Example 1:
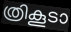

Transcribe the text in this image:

ത്രികൂടാ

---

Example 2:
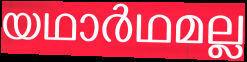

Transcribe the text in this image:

യഥാർഥമല്ല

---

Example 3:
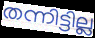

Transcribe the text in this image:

തന്നിട്ടില്ല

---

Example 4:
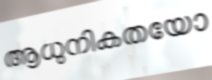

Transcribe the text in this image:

ആധുനികതയോ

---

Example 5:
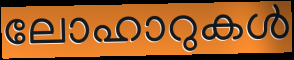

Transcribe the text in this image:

ലോഹാറുകൾ